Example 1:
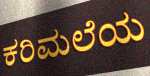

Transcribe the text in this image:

ಕರಿಮಲೆಯ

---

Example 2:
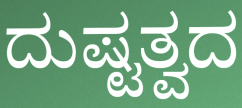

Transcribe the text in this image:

ದುಷ್ಟತ್ವದ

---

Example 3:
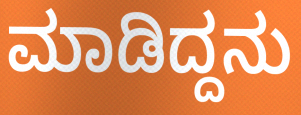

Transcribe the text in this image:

ಮಾಡಿದ್ದನು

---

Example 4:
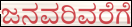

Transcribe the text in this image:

ಜನವರಿವರೆಗೆ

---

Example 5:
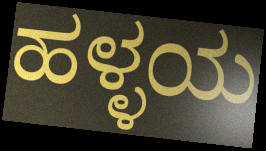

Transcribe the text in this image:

ಹಳ್ಳಯ